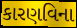
કારણવિના